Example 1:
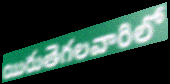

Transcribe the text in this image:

యిరుతెగలవారిలో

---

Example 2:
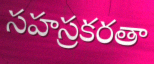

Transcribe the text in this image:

సహస్రకరతా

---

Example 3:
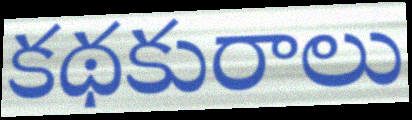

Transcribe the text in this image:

కథకురాలు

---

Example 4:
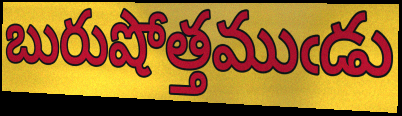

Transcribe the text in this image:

బురుషోత్తముఁడు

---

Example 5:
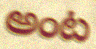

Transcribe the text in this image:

అంట